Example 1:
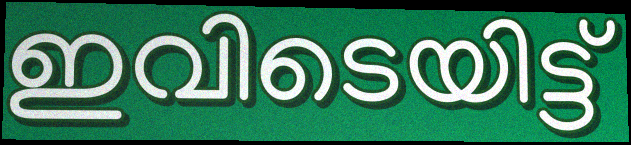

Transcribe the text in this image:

ഇവിടെയിട്ട്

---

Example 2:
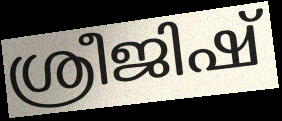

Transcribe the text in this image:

ശ്രീജിഷ്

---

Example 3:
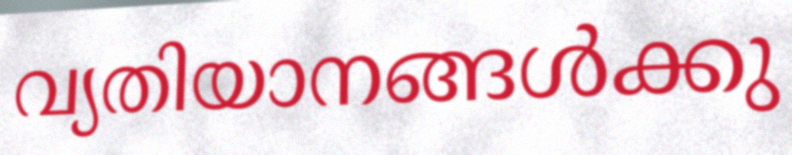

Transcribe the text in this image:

വ്യതിയാനങ്ങൾക്കു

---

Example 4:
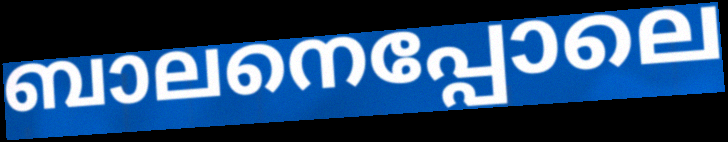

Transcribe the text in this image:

ബാലനെപ്പോലെ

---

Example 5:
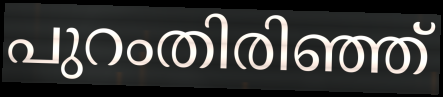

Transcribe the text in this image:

പുറംതിരിഞ്ഞ്